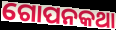
ଗୋପନକଥା